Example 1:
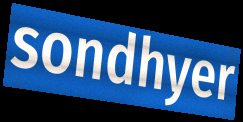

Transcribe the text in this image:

sondhyer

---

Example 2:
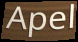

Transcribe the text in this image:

Apel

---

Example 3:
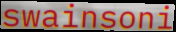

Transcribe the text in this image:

swainsoni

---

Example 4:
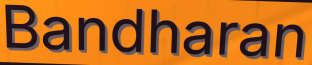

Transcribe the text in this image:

Bandharan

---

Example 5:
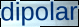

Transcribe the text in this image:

dipolar